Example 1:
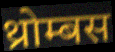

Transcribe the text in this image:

थ्रोम्बस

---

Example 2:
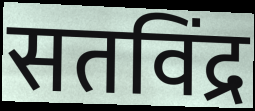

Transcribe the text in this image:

सतविंद्र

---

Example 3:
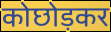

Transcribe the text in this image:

कोछोड़कर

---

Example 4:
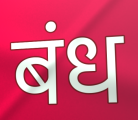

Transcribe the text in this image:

बंध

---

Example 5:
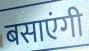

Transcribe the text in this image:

बसाएंगी